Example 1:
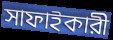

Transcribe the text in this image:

সাফাইকারী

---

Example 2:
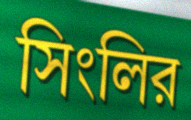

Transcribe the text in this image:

সিংলির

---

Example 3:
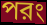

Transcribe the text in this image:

পরং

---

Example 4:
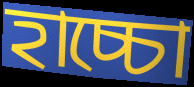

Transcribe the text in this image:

হাচ্চো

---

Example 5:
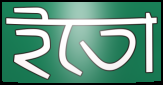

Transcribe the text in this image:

ইতো